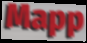
Mapp